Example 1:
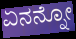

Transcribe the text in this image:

ಏನನ್ನೋ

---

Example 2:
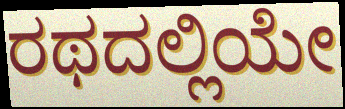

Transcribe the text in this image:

ರಥದಲ್ಲಿಯೇ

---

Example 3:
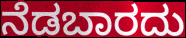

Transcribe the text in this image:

ನೆಡಬಾರದು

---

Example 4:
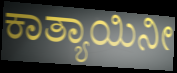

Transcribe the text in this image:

ಕಾತ್ಯಾಯಿನೀ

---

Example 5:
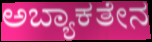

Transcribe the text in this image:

ಅಬ್ಯಾಕತೇನ